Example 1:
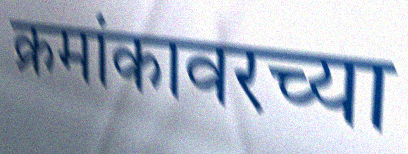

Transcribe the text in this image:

क्रमांकावरच्या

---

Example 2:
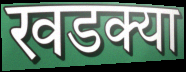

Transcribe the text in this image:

खडक्या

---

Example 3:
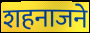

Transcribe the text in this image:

शहनाजने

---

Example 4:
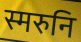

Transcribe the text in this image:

स्मरुनि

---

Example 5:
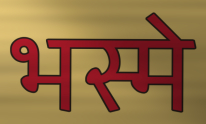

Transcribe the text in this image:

भस्मे